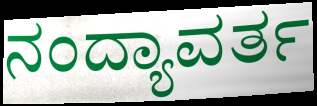
ನಂದ್ಯಾವರ್ತ